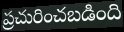
ప్రచురించబడింది